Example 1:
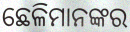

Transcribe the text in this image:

ଛେଳିମାନଙ୍କର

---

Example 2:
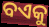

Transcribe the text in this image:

ବଏକୁ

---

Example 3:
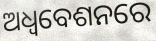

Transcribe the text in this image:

ଅଧ୍ଵବେଶନରେ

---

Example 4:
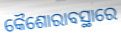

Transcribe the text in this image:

କୈଶୋରାବସ୍ଥାରେ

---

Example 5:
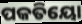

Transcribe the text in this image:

ପକତିୟୋ